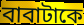
বাবাটাকে